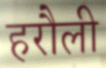
हरौली